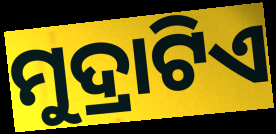
ମୁଦ୍ରାଟିଏ